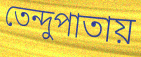
তেন্দুপাতায়